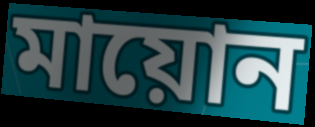
মায়োন